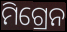
ମିଗ୍ରେନ